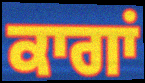
ਕਾਗਾਂ